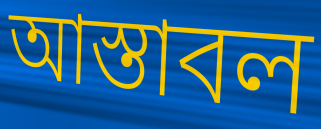
আস্তাবল